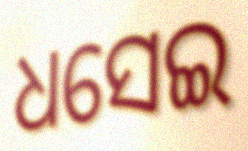
ଧସେଇ